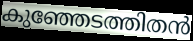
കുഞ്ഞേടത്തിതൻ